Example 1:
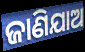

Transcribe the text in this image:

ଜାଣିଯାଅ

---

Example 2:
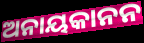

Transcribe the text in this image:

ଅନାୟକାନନ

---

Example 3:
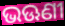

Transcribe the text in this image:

ଭଊଣୀ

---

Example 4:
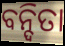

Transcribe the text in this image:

ବନ୍ଦିତା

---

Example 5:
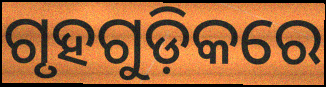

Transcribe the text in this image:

ଗୃହଗୁଡ଼ିକରେ